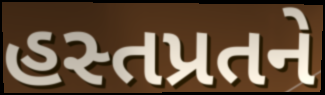
હસ્તપ્રતને